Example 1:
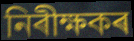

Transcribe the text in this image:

নিৰীক্ষকৰ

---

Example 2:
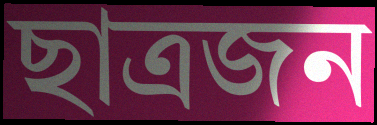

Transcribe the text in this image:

ছাত্ৰজন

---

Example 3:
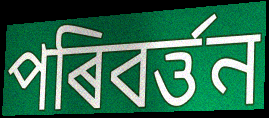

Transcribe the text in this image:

পৰিবৰ্ত্তন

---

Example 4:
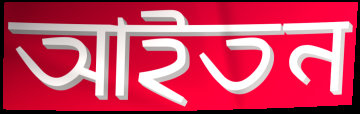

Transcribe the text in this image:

আইতন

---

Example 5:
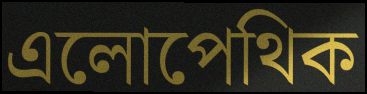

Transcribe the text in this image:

এলোপেথিক